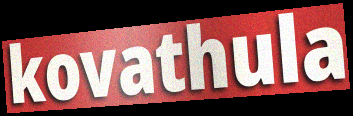
kovathula